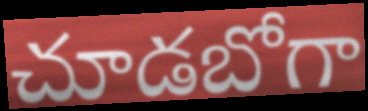
చూడబోగా